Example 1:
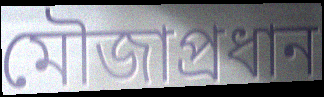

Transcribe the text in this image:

মৌজাপ্রধান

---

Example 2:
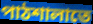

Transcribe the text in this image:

পাঠশালাতে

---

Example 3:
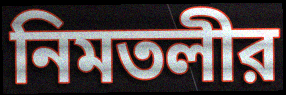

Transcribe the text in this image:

নিমতলীর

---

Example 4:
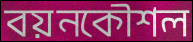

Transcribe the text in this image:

বয়নকৌশল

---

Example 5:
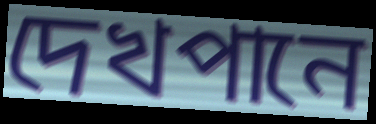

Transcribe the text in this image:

দেখপানে